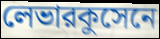
লেভারকুসেনে